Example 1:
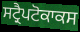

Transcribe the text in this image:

ਸਟ੍ਰੈਪਟੋਕਾਕਸ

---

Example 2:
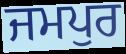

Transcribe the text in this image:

ਜਮਪੁਰ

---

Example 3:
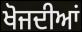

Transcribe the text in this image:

ਖੋਜਦੀਆਂ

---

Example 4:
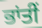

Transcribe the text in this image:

ਭਾਂਤੀਂ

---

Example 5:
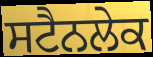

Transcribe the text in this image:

ਸਟੈਨਲੇਕ